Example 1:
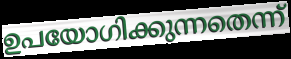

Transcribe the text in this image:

ഉപയോഗിക്കുന്നതെന്ന്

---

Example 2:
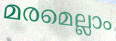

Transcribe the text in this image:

മരമെല്ലാം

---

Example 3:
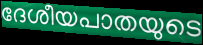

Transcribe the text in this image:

ദേശീയപാതയുടെ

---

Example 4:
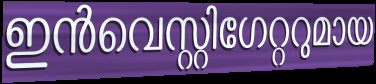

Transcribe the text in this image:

ഇൻവെസ്റ്റിഗേറ്ററുമായ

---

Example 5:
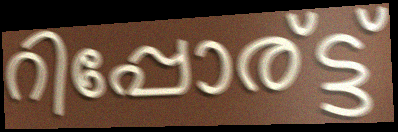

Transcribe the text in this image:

റിപ്പോര്ട്ട്